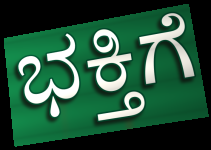
ಭಕ್ತಿಗೆ